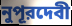
নুপূরদেবী